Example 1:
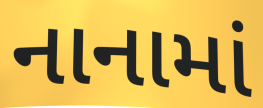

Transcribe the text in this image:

નાનામાં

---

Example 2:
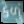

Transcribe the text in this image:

કેળું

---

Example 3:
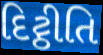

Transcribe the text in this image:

દિટ્ઠીતિ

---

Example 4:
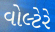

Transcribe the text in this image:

વોલ્ટેરે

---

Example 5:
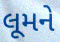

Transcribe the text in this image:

લૂમને